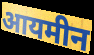
आयमीन